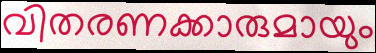
വിതരണക്കാരുമായും